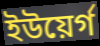
ইউয়ের্গ